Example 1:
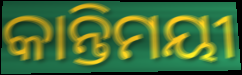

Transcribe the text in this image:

କାନ୍ତିମୟୀ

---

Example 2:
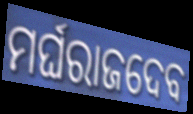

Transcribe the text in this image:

ମର୍ଘରାଜଦେବ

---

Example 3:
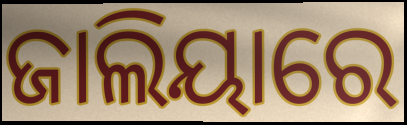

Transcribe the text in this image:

ଜାଲିୟାରେ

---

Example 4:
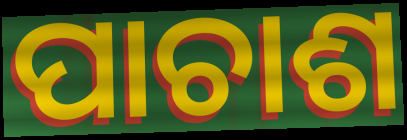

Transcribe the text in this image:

ପାଚାଶ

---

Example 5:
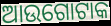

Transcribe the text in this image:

ଆଉଗୋଟାକ